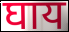
घाय